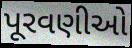
પૂરવણીઓ